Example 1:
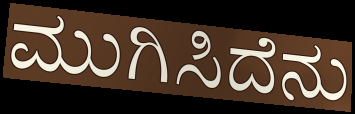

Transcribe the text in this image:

ಮುಗಿಸಿದೆನು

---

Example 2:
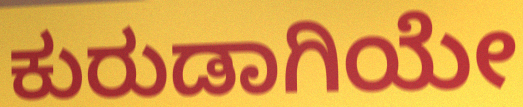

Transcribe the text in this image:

ಕುರುಡಾಗಿಯೇ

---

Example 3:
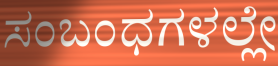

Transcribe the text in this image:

ಸಂಬಂಧಗಳಲ್ಲೇ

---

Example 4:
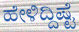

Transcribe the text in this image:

ಹೇಳಿದ್ದಿಷ್ಟೆ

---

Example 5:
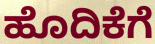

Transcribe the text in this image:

ಹೊದಿಕೆಗೆ